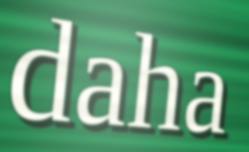
daha